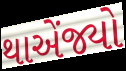
થાએંજ્યો